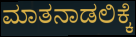
ಮಾತನಾಡಲಿಕ್ಕೆ